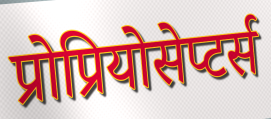
प्रोप्रियोसेप्टर्स